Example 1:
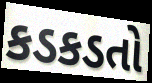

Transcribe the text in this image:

કડકડતો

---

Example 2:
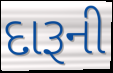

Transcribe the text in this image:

દારૂની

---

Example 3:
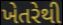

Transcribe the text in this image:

ખેતરેથી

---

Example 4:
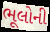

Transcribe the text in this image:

ભૂલોની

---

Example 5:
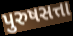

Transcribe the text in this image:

પુરુષસત્તા